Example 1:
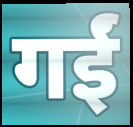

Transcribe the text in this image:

गईं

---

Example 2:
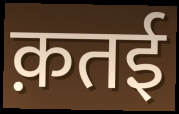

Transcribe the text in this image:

क़तई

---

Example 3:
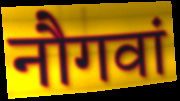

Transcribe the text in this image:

नौगवां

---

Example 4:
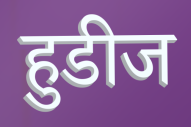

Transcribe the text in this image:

हुडीज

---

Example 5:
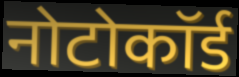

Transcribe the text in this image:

नोटोकॉर्ड